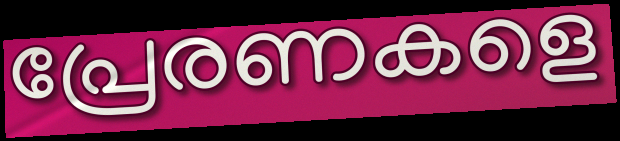
പ്രേരണകളെ